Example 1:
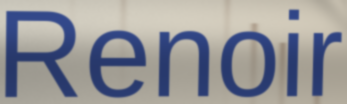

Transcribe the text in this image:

Renoir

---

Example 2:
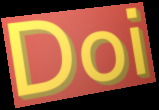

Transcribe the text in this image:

Doi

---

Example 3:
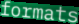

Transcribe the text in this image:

formats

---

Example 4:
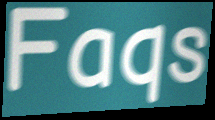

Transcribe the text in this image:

Faqs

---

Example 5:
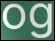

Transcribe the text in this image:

og